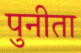
पुनीता